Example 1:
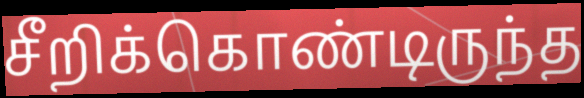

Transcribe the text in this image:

சீறிக்கொண்டிருந்த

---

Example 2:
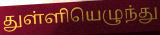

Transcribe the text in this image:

துள்ளியெழுந்து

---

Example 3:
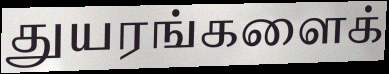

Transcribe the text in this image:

துயரங்களைக்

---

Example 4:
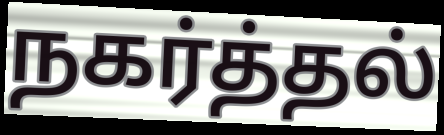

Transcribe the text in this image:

நகர்த்தல்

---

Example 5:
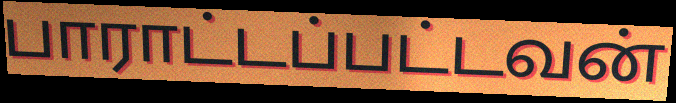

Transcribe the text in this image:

பாராட்டப்பட்டவன்